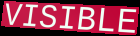
VISIBLE